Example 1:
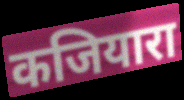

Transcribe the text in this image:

कजियारा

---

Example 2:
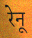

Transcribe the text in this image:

रेनू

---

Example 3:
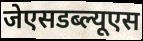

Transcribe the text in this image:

जेएसडब्ल्यूएस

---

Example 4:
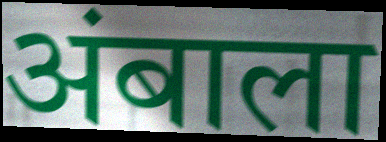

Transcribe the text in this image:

अंबाला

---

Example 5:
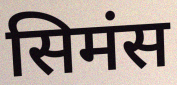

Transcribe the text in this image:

सिमंस